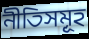
নীতিসমূহ